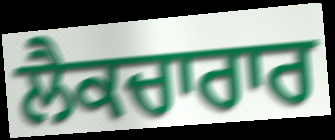
ਲੈਕਚਾਰਾਰ